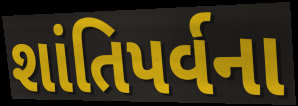
શાંતિપર્વના